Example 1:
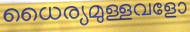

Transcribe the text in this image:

ധൈര്യമുള്ളവളോ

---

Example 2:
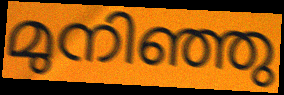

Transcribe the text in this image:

മുനിഞ്ഞു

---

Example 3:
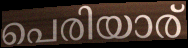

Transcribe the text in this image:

പെരിയാര്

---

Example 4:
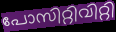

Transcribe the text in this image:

പോസിറ്റിവിറ്റി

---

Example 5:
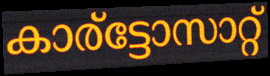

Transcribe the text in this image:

കാര്ട്ടോസാറ്റ്